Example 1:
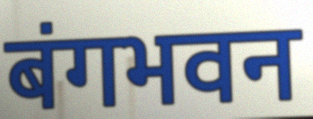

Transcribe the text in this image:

बंगभवन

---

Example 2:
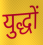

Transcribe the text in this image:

युद्धों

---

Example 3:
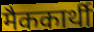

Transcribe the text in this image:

मैककार्थी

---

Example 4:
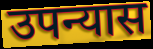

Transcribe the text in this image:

उपन्यास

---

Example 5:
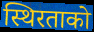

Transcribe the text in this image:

स्थिरताको